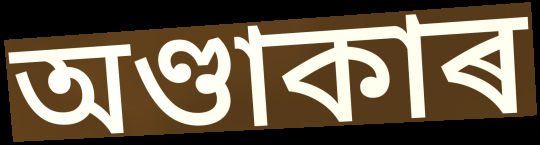
অণ্ডাকাৰ